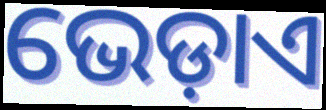
ଭେଡ଼ାଏ